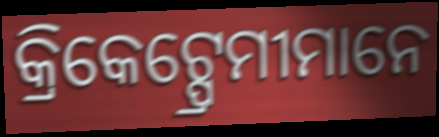
କ୍ରିକେଟ୍ପ୍ରେମୀମାନେ